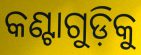
କଣ୍ଟାଗୁଡ଼ିକୁ